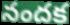
నందక